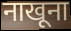
नाखूना